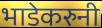
भाडेकरुनी